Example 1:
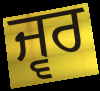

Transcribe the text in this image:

ਜ੍ਵਰ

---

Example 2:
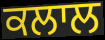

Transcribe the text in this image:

ਕਲਾਲ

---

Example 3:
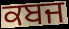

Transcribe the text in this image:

ਕਬਜ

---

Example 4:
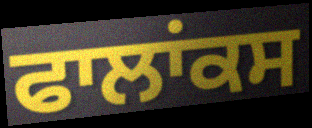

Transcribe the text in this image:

ਫਾਲਾਂਕਸ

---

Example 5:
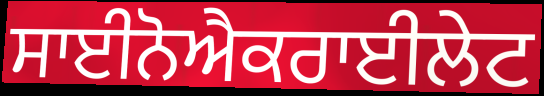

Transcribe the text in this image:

ਸਾਈਨੋਐਕਰਾਈਲੇਟ